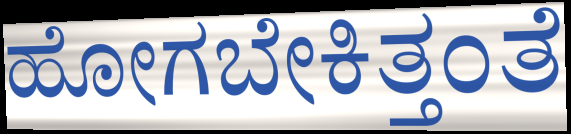
ಹೋಗಬೇಕಿತ್ತಂತೆ